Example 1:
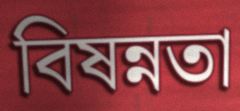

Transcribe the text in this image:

বিষন্নতা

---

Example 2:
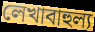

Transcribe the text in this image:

লেখাবাহুল্য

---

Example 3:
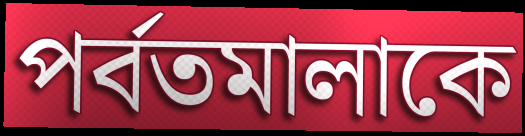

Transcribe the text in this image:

পর্বতমালাকে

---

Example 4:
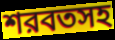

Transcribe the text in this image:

শরবতসহ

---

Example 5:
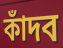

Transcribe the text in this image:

কাঁদব